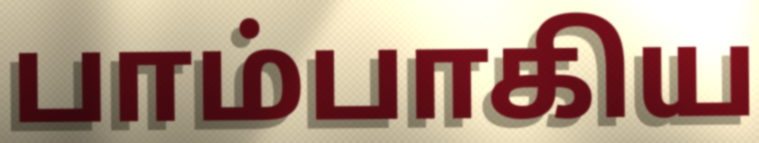
பாம்பாகிய